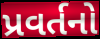
પ્રવર્તનો